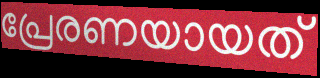
പ്രേരണയായത്